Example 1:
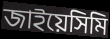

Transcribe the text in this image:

জাইয়েসিমি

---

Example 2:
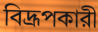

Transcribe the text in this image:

বিদ্রূপকারী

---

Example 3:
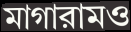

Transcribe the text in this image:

মাগারামও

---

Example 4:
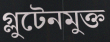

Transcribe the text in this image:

গ্লুটেনমুক্ত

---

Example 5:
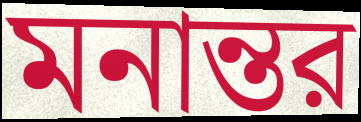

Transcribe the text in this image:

মনান্তর